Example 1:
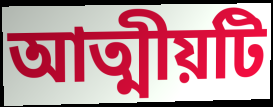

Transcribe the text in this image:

আত্মীয়টি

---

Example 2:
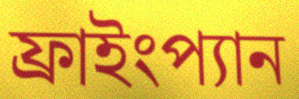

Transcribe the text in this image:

ফ্রাইংপ্যান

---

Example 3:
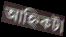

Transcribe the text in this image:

আহ্নিকটা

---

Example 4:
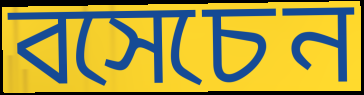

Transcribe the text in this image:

বসেচেন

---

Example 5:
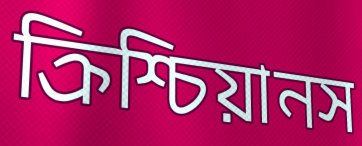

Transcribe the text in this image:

ক্রিশ্চিয়ানস